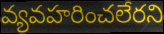
వ్యవహరించలేరని